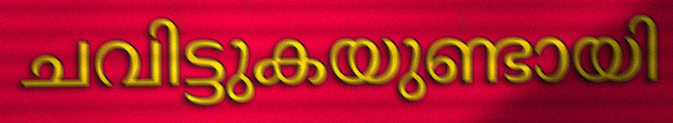
ചവിട്ടുകയുണ്ടായി